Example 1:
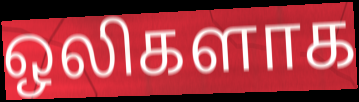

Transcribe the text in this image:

ஒலிகளாக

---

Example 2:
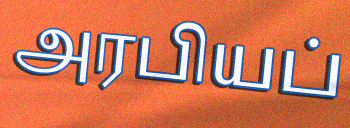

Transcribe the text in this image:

அரபியப்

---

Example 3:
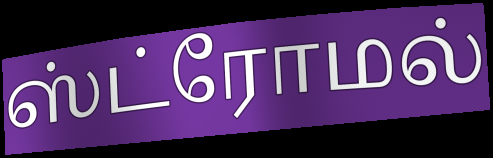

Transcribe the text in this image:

ஸ்ட்ரோமல்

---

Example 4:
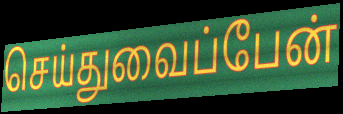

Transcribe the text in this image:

செய்துவைப்பேன்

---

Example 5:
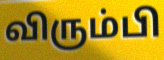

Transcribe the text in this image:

விரும்பி